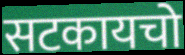
सटकायचो